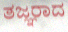
ತಜ್ಞರಾದ